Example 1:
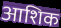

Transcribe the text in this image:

आशिक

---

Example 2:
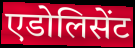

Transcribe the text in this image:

एडोलिसेंट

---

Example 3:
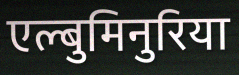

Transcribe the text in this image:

एल्बुमिनुरिया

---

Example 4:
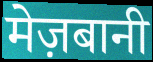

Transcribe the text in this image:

मेज़बानी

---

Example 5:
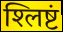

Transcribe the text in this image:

श्लिष्टं